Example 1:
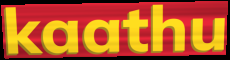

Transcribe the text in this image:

kaathu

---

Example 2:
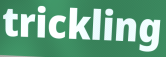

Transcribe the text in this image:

trickling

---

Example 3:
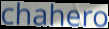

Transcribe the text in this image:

chahero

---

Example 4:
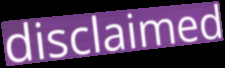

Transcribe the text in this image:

disclaimed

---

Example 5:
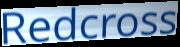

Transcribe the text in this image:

Redcross